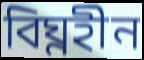
বিঘ্নহীন